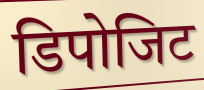
डिपोजिट